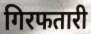
गिरफतारी